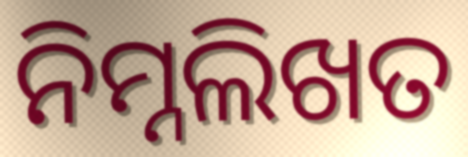
ନିମ୍ନଲିଖତ